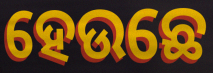
ହେଉଛେ